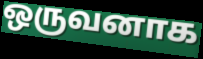
ஒருவனாக